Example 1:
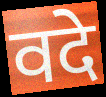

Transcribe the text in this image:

वदे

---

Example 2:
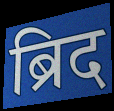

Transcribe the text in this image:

ब्रिद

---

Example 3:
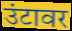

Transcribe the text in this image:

उंटावर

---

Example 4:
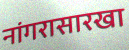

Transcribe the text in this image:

नांगरासारखा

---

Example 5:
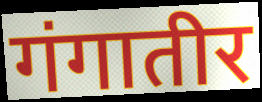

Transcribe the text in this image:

गंगातीर